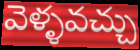
వెళ్ళవచ్చు